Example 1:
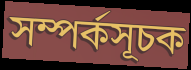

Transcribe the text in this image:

সম্পর্কসূচক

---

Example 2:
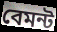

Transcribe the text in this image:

বেমন্ট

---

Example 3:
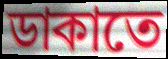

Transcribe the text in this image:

ডাকাতে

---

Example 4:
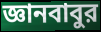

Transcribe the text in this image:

জ্ঞানবাবুর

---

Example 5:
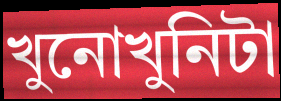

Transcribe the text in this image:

খুনোখুনিটা